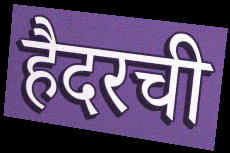
हैदरची